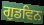
ਗੁਡਵਿਨ